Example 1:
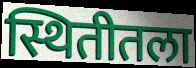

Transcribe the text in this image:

स्थितीतला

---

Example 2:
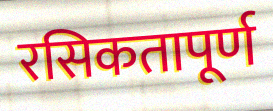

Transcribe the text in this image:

रसिकतापूर्ण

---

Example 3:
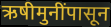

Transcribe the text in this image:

ऋषीमुनींपासून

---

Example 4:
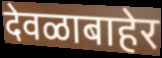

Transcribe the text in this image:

देवळाबाहेर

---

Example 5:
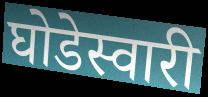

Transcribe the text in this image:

घोडेस्वारी